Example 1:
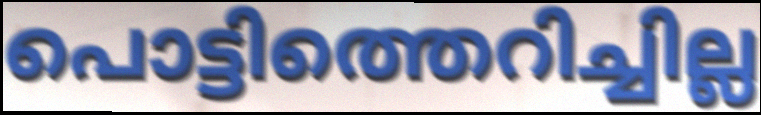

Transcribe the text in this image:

പൊട്ടിത്തെറിച്ചില്ല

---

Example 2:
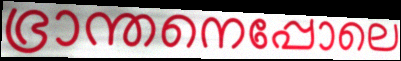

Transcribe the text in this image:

ഭ്രാന്തനെപ്പോലെ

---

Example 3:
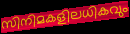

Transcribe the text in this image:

സിനിമകളിലധികവും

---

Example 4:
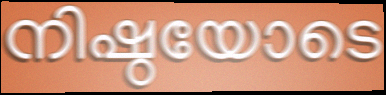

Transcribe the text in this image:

നിഷ്ഠയോടെ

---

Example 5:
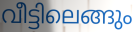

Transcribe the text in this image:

വീട്ടിലെങ്ങും